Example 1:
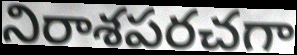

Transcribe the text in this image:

నిరాశపరచగా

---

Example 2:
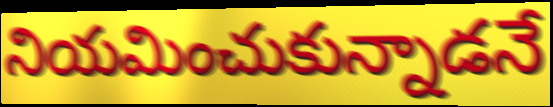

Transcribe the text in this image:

నియమించుకున్నాడనే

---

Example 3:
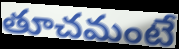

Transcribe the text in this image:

తూచమంటే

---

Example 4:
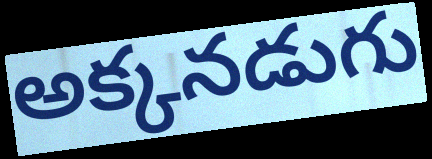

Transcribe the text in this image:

అక్కనడుగు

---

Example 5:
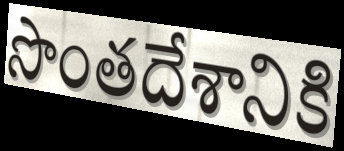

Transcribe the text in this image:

సొంతదేశానికి